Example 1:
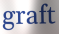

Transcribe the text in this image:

graft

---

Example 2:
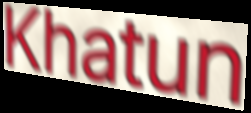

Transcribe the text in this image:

Khatun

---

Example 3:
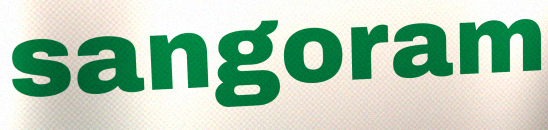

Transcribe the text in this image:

sangoram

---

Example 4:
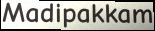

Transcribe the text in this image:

Madipakkam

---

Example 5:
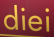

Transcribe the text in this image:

diei